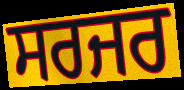
ਸਰਜਰ